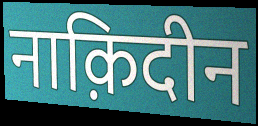
नाक़िदीन